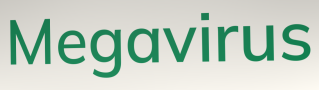
Megavirus